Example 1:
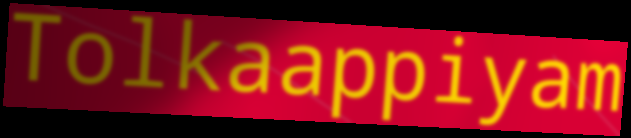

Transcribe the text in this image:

Tolkaappiyam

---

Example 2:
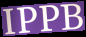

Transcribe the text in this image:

IPPB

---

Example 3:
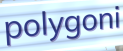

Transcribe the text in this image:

polygoni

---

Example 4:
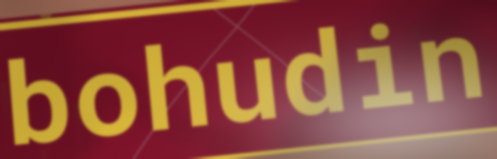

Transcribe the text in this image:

bohudin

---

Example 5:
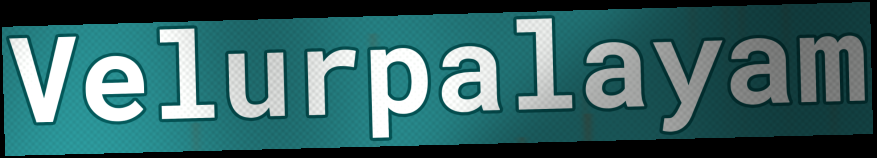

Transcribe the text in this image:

Velurpalayam